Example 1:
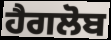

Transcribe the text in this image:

ਹੈਗਲੋਬ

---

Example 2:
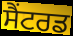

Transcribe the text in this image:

ਸੈਂਟਰਡ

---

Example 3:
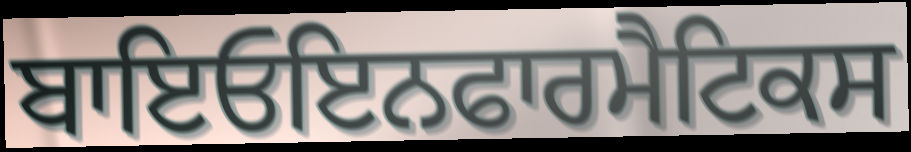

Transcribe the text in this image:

ਬਾਇਓਇਨਫਾਰਮੈਟਿਕਸ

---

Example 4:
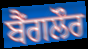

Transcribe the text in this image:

ਬੈੰਗਲੌਰ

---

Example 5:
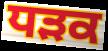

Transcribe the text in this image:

ਧਡ਼ਕ